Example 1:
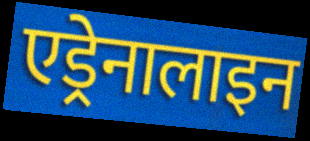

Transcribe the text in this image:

एड्रेनालाइन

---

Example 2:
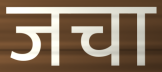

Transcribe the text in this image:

जचा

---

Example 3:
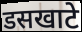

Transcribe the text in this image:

डसखाटे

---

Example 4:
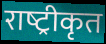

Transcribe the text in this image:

राष्ट्रीकृत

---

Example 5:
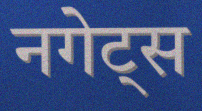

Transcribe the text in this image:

नगेट्स